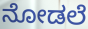
ನೋಡಲೆ